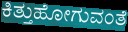
ಕಿತ್ತುಹೋಗುವಂತೆ